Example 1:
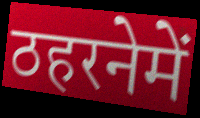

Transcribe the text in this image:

ठहरनेमें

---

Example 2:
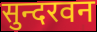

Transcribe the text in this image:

सुन्दरवन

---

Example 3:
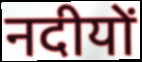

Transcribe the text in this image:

नदीयों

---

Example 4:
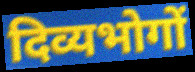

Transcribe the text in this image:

दिव्यभोगों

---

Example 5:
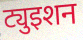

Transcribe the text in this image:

ट्युइशन